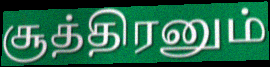
சூத்திரனும்